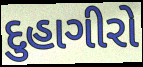
દુહાગીરો